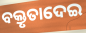
ବକ୍ତୃତାଦେଇ